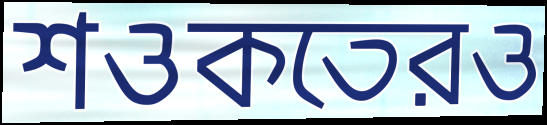
শওকতেরও